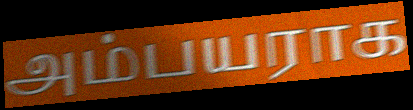
அம்பயராக